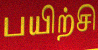
பயிற்சி